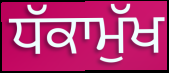
ਧੱਕਾਮੁੱਖ